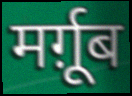
मर्ग़ूब